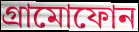
গ্ৰামোফোন